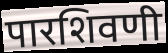
पारशिवणी